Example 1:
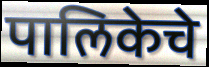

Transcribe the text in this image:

पालिकेचे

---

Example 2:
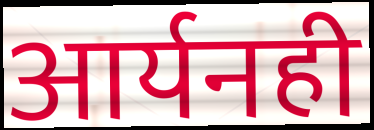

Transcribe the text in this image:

आर्यनही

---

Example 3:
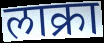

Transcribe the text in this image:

लाक्रा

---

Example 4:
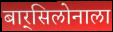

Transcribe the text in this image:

बार्सिलोनाला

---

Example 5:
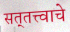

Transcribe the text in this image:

सत्‌तत्त्वाचे